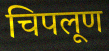
चिपलूण